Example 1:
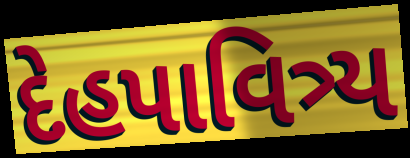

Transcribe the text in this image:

દેહપાવિત્ર્ય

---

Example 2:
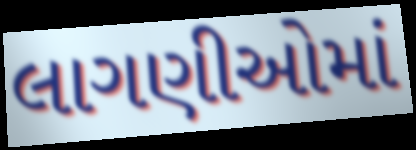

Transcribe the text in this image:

લાગણીઓમાં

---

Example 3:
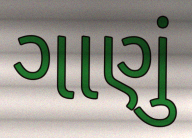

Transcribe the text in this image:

ગાણું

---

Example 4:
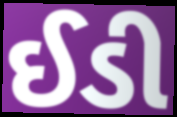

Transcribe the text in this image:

ઈડી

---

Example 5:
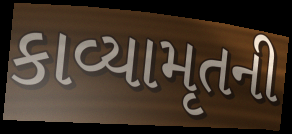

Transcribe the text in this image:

કાવ્યામૃતની